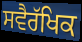
ਸਵੈਰੱਖਿਕ